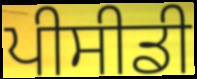
ਪੀਸੀਡੀ